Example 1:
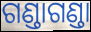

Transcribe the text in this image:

ଗଣ୍ଡାଗଣ୍ଡା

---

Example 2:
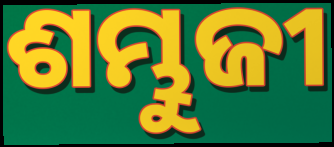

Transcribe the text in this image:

ଶମ୍ଭୁଜୀ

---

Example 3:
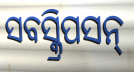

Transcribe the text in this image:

ସବସ୍କ୍ରିପସନ୍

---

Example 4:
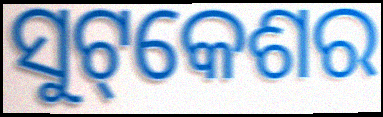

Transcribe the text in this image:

ସୁଟ୍‌କେଶର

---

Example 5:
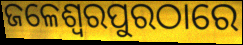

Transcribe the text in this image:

ଜଳେଶ୍ୱରପୁରଠାରେ